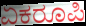
ಏಕರೂಪಿ